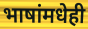
भाषांमधेही